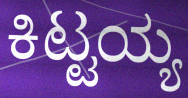
ಕಿಟ್ಟಯ್ಯ